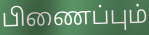
பிணைப்பும்